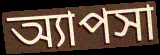
অ্যাপসা